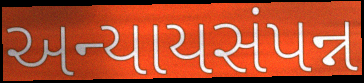
અન્યાયસંપન્ન